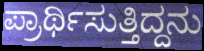
ಪ್ರಾರ್ಥಿಸುತ್ತಿದ್ದನು